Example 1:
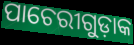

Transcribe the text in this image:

ପାଚେରୀଗୁଡ଼ାକ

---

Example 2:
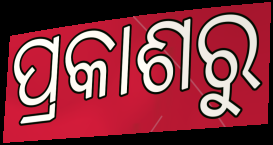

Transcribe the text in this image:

ପ୍ରକାଶରୁ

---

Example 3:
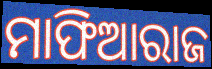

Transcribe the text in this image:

ମାଫିଆରାଜ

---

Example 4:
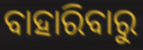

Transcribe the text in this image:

ବାହାରିବାରୁ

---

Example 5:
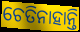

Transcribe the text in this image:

ଚେତିନାହାନ୍ତି